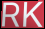
RK